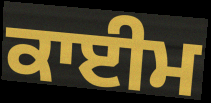
ਕਾਈਮ